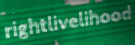
rightlivelihood